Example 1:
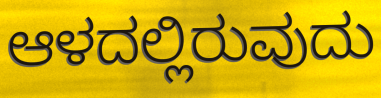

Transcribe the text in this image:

ಆಳದಲ್ಲಿರುವುದು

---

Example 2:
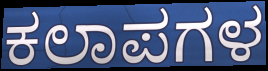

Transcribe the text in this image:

ಕಲಾಪಗಳ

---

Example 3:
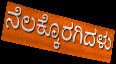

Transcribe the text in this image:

ನೆಲಕ್ಕೊರಗಿದಳು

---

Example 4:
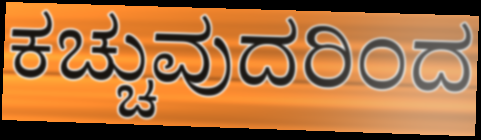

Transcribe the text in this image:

ಕಚ್ಚುವುದರಿಂದ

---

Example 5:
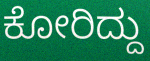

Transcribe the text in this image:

ಕೋರಿದ್ದು